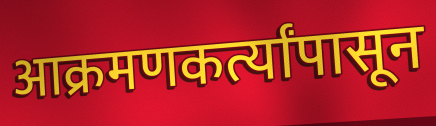
आक्रमणकर्त्यांपासून